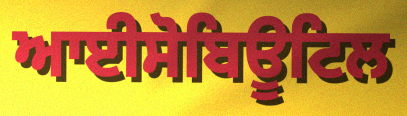
ਆਈਸੋਬਿਊਟਿਲ